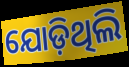
ଯୋଡ଼ିଥିଲି